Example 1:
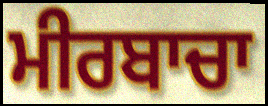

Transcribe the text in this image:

ਮੀਰਬਾਚਾ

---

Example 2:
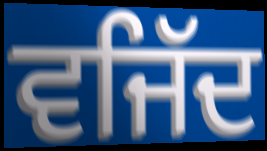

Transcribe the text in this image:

ਵਜਿੱਦ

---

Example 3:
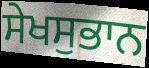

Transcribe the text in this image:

ਸੇਖਸੁਭਾਨ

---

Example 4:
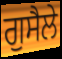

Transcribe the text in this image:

ਗੁਸੈਲੇ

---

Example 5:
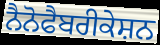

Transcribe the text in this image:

ਨੈਨੋਫੈਬਰੀਕੇਸ਼ਨ